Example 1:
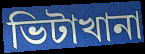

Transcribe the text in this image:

ভিটাখানা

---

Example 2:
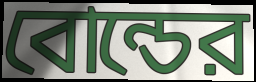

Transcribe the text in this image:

বোন্ডের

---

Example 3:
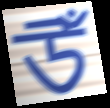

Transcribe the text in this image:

উঁ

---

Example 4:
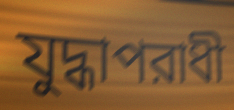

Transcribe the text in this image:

যুদ্ধাপরাধী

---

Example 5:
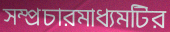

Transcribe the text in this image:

সম্প্রচারমাধ্যমটির